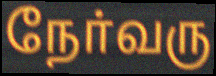
நேர்வரு